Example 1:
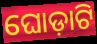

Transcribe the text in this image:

ଘୋଡ଼ାଟି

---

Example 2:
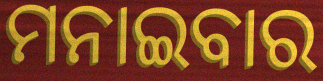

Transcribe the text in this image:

ମନାଇବାର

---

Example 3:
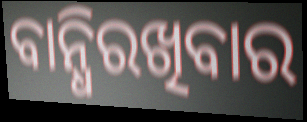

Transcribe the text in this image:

ବାନ୍ଧିରଖିବାର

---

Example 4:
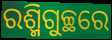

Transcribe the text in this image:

ରଶ୍ମିଗୁଚ୍ଛରେ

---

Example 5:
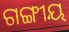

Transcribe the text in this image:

ଗଙ୍ଗୀୟ